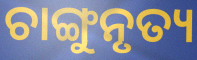
ଚାଙ୍ଗୁନୃତ୍ୟ